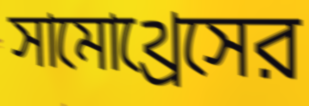
সামোথ্রেসের